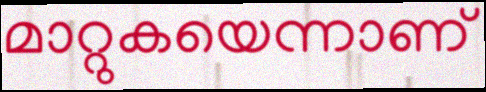
മാറ്റുകയെന്നാണ്